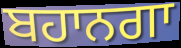
ਬਹਾਨਗਾ